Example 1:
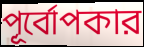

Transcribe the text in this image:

পূর্বোপকার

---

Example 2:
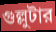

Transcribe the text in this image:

গুল্লুটার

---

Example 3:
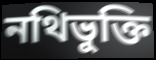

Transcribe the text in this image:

নথিভুক্তি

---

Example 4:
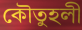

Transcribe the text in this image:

কৌতুহলী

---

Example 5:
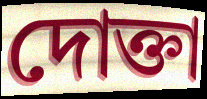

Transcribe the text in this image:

দোক্তা